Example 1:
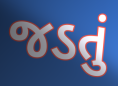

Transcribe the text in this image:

જડતું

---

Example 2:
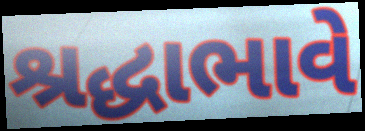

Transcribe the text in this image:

શ્રદ્ધાભાવે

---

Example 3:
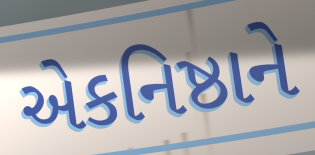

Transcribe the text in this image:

એકનિષ્ઠાને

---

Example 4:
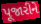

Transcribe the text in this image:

પૂજારીને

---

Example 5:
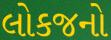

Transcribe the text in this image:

લોકજનો